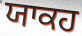
ਯਾਕਹ